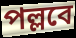
পল্লবে